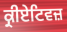
ਕ੍ਰੀਏਟਿਵਜ਼